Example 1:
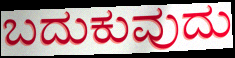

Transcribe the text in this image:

ಬದುಕುವುದು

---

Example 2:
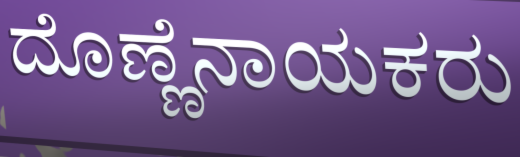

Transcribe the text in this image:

ದೊಣ್ಣೆನಾಯಕರು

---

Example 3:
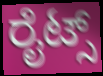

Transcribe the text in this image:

ರೈಟ್ಸ್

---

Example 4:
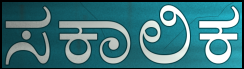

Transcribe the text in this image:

ಸಕಾಲಿಕ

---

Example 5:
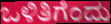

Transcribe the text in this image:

ಒಳಿತಿಗೆಂದು